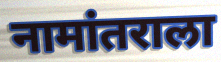
नामांतराला